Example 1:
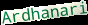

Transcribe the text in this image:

Ardhanari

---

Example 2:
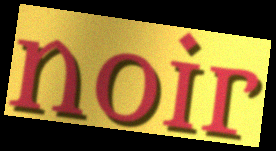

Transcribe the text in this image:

noir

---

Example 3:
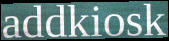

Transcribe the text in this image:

addkiosk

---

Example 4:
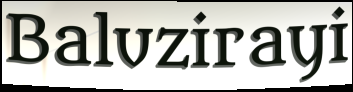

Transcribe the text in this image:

Baluzirayi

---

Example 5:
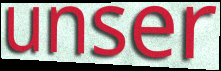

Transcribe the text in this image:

unser